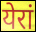
येरां